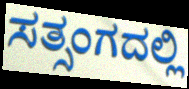
ಸತ್ಸಂಗದಲ್ಲಿ